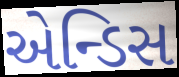
એન્ડિસ